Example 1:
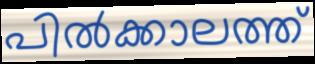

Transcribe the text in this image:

പിൽക്കാലത്ത്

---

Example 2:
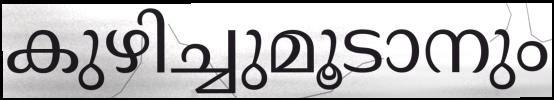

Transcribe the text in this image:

കുഴിച്ചുമൂടാനും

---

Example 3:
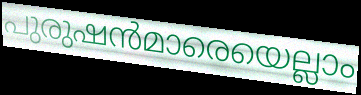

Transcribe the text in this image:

പുരുഷൻമാരെയെല്ലാം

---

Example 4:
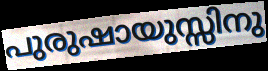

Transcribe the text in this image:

പുരുഷായുസ്സിനു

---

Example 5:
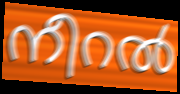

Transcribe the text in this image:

നീറൽ